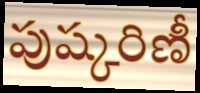
పుష్కరిణీ